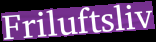
Friluftsliv